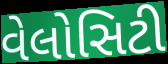
વેલોસિટી